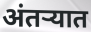
अंतऱ्यात